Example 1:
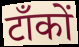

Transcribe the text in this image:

टाँकों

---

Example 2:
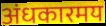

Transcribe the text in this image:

अंधकारमय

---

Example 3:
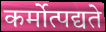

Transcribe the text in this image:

कर्मोत्पद्यते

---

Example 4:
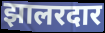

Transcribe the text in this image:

झालरदार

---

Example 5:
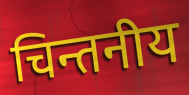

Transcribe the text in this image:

चिन्तनीय